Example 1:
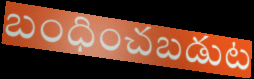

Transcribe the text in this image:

బంధించబడుట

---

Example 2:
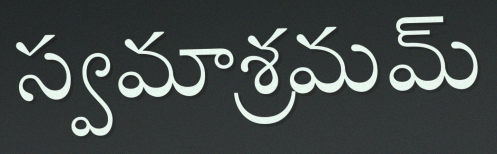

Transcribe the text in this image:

స్వమాశ్రమమ్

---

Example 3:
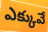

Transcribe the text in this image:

ఎక్కువే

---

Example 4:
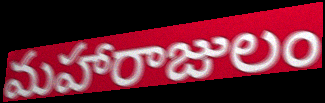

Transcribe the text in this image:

మహారాజులం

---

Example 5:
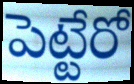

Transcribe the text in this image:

పెట్టేరో